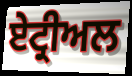
ਏਟ੍ਰੀਅਲ